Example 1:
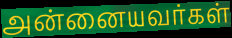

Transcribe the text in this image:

அன்னையவர்கள்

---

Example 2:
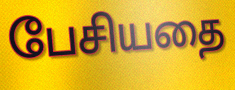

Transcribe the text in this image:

பேசியதை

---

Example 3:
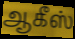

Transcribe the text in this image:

ஆகீஸ்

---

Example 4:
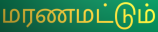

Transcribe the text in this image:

மரணமட்டும்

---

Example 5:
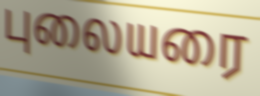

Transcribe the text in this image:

புலையரை